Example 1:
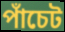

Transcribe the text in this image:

পাঁচেট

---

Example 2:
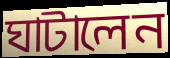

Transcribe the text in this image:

ঘাটালেন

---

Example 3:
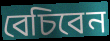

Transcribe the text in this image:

বেচিবেন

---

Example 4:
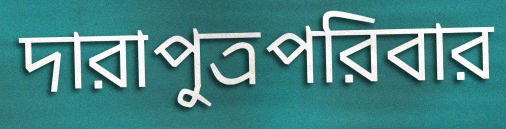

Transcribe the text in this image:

দারাপুত্রপরিবার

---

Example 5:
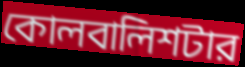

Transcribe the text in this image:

কোলবালিশটার